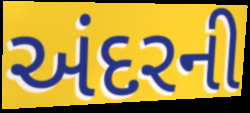
અંદરની